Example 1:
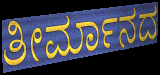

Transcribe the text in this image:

ತೀರ್ಮಾನದ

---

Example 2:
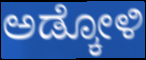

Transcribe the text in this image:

ಅಡ್ಕೋಳಿ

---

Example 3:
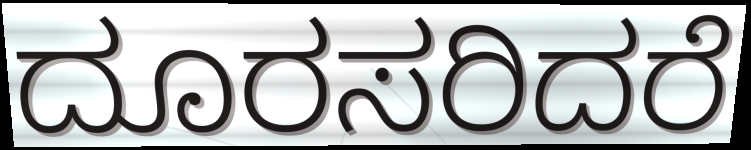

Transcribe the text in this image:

ದೂರಸರಿದರೆ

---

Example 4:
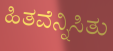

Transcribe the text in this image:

ಹಿತವೆನ್ನಿಸಿತು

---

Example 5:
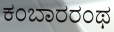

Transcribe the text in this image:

ಕಂಬಾರರಂಥ